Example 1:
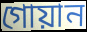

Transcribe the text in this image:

গোয়ান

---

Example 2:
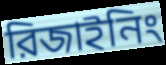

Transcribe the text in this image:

রিজাইনিং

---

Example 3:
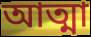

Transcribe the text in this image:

আত্মা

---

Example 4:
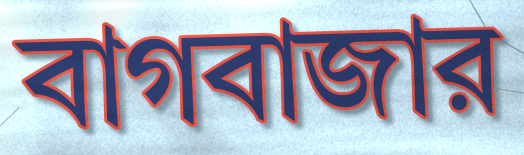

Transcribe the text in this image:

বাগবাজার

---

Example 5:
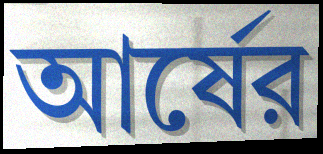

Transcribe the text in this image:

আর্ষের